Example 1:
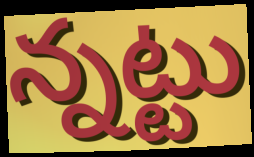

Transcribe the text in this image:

న్నట్టు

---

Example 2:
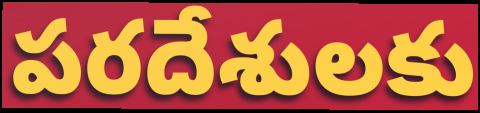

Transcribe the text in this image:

పరదేశులకు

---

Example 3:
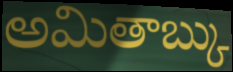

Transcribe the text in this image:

అమితాబ్కు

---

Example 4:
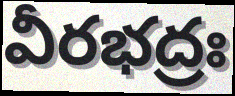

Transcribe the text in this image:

వీరభద్రః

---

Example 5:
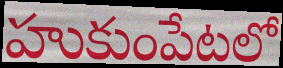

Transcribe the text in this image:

హుకుంపేటలో